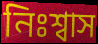
নিঃশ্বাস